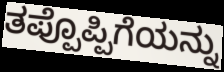
ತಪ್ಪೊಪ್ಪಿಗೆಯನ್ನು